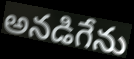
అనడిగేను